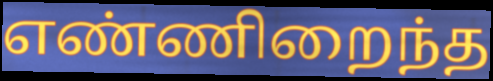
எண்ணிறைந்த